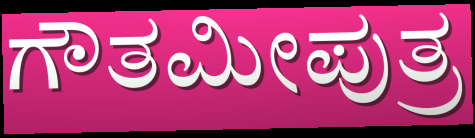
ಗೌತಮೀಪುತ್ರ